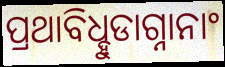
ପ୍ରଥାବିଧ୍ହୁଡାଗ୍ନାନାଂ